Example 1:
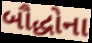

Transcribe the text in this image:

બૌદ્ધોના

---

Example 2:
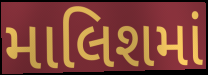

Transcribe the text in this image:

માલિશમાં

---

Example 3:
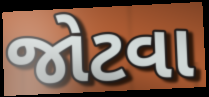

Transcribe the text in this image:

જોટવા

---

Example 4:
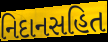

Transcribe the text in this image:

નિદાનસહિત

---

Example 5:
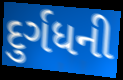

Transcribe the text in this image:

દુર્ગધની